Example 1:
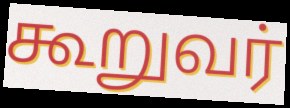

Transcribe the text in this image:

கூறுவர்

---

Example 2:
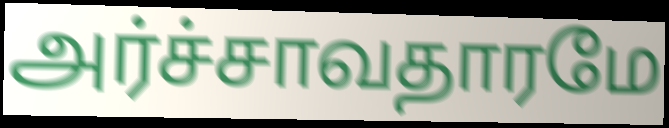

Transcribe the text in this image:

அர்ச்சாவதாரமே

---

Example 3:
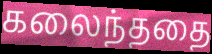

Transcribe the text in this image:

கலைந்ததை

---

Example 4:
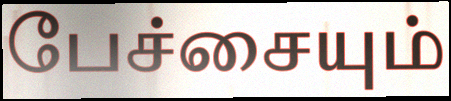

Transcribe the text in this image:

பேச்சையும்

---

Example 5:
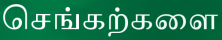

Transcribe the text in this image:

செங்கற்களை